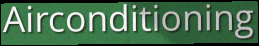
Airconditioning